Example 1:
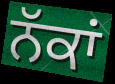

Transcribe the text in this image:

ਨੱਕਾਂ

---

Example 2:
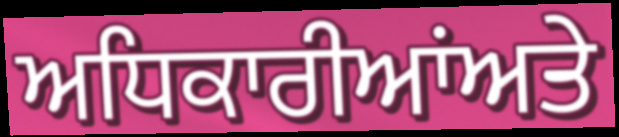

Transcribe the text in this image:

ਅਧਿਕਾਰੀਆਂਅਤੇ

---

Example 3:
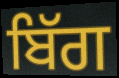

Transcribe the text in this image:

ਬਿੱਗ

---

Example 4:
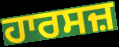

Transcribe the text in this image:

ਹਾਰਸਜ਼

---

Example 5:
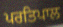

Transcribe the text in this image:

ਪਰਤਿਪਾਲ